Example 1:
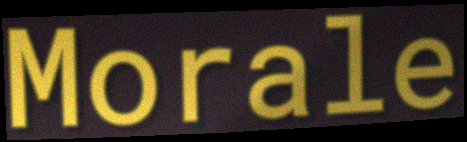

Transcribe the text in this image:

Morale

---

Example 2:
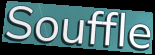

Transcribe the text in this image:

Souffle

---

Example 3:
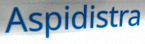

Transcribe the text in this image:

Aspidistra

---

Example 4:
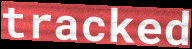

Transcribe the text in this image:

tracked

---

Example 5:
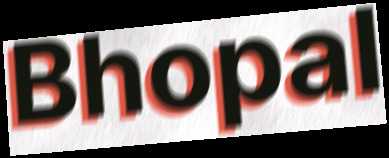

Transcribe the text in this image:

Bhopal